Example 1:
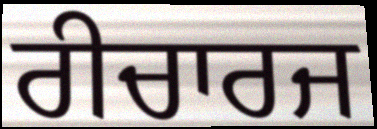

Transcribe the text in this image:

ਰੀਚਾਰਜ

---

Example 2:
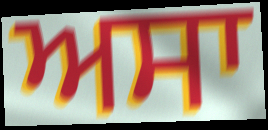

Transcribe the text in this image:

ਅਸਾ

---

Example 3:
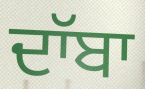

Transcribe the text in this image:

ਦਾੱਬਾ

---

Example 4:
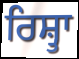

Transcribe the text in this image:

ਰਿਸ਼੍ਤਾ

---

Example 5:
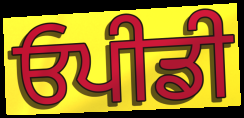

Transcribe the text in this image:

ਓਪੀਡੀ